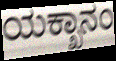
ಯಕ್ಖಾನಂ